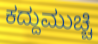
ಕದ್ದುಮುಚ್ಚಿ